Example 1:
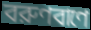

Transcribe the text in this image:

বরুণবাণে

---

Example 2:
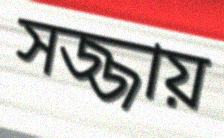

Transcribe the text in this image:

সজ্জায়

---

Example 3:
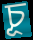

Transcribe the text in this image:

চূ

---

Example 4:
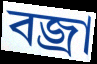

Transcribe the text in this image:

বজ্রা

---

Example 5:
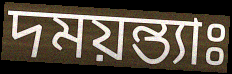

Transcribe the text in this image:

দময়ন্ত্যাঃ